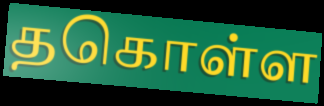
தகொள்ள